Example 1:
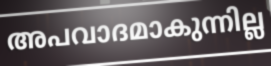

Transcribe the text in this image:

അപവാദമാകുന്നില്ല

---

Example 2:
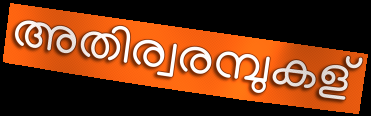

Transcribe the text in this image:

അതിര്വരമ്പുകള്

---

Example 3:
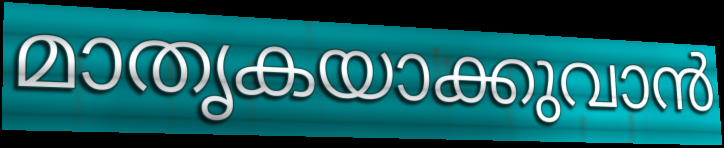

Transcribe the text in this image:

മാതൃകയാക്കുവാൻ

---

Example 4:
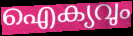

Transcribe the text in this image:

ഐക്യവും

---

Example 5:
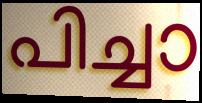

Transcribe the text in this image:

പിച്ചാ